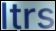
ltrs